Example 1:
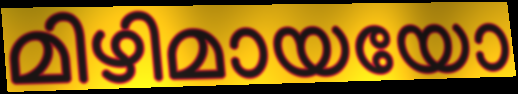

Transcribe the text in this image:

മിഴിമായയോ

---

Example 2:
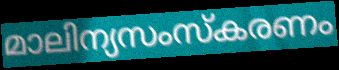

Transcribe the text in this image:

മാലിന്യസംസ്കരണം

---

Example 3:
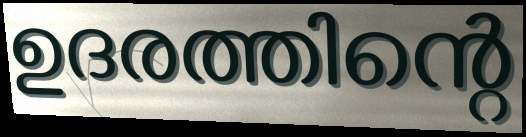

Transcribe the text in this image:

ഉദരത്തിന്റെ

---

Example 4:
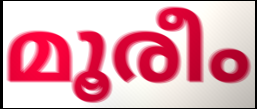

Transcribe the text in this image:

മൂരീം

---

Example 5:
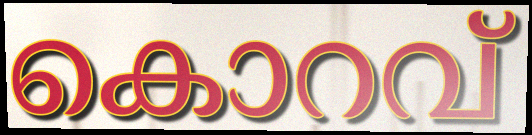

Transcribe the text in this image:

കൊറവ്